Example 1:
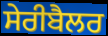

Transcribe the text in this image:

ਸੇਰੀਬੈਲਰ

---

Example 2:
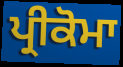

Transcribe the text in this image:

ਪ੍ਰੀਕੋਮਾ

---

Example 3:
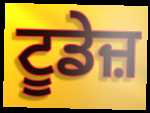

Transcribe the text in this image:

ਟੂਡੇਜ਼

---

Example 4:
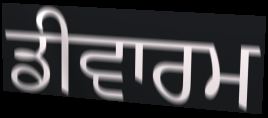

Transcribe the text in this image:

ਡੀਵਾਰਮ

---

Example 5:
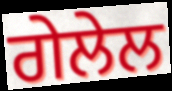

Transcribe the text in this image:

ਗੇਲੇਲ